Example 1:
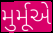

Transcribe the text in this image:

મુર્મૂએ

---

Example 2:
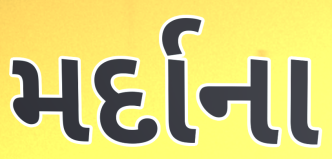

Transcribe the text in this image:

મર્દાના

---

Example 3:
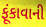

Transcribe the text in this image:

ફૂંકાવાની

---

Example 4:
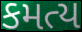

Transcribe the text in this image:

કમત્ય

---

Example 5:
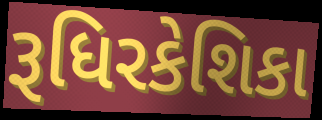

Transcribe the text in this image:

રૂધિરકેશિકા